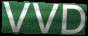
VVD